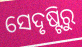
ସେଦୃଷ୍ଟିରୁ